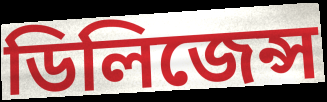
ডিলিজেন্স